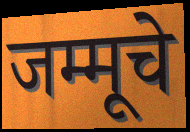
जम्मूचे